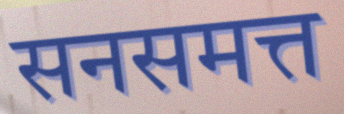
सनसमत्त